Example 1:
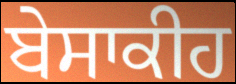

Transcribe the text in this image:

ਬੇਸਾਕੀਹ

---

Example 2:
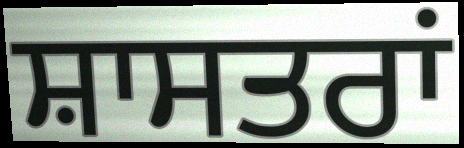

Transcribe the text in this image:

ਸ਼ਾਸਤਰਾਂ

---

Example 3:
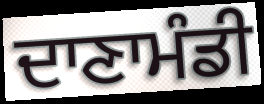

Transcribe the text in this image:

ਦਾਣਾਮੰਡੀ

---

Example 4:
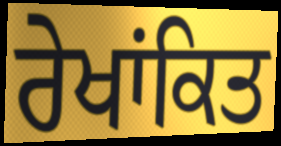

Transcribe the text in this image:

ਰੇਖਾਂਕਿਤ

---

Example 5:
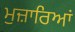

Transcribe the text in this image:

ਮੁਜ਼ਾਰਿਆਂ